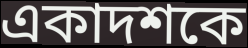
একাদশকে